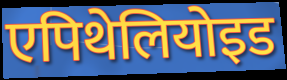
एपिथेलियोइड